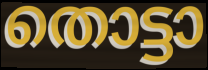
തൊട്ടാ